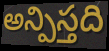
అన్పిస్తది